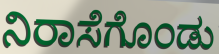
ನಿರಾಸೆಗೊಂಡು